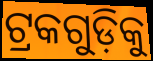
ଟ୍ରକଗୁଡ଼ିକୁ